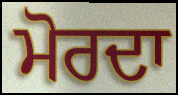
ਮੋਰਦਾ